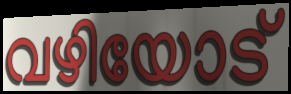
വഴിയോട്